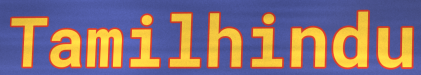
Tamilhindu